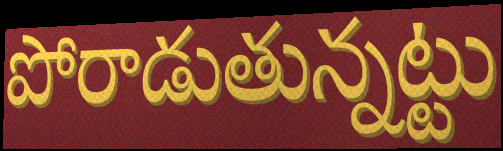
పోరాడుతున్నట్టు